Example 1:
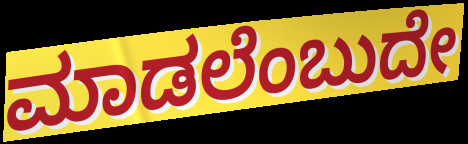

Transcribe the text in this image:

ಮಾಡಲೆಂಬುದೇ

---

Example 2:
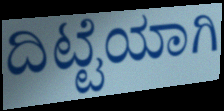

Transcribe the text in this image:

ದಿಟ್ಟೆಯಾಗಿ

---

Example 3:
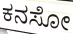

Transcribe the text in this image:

ಕನಸೋ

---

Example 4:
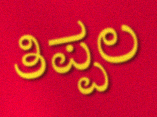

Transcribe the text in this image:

ತಿಪ್ಪಲ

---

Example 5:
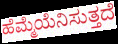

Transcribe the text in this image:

ಹೆಮ್ಮೆಯೆನಿಸುತ್ತದೆ